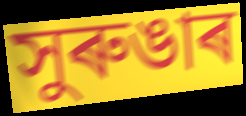
সুৰুঙাৰ